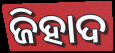
ଜିହାଦ